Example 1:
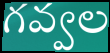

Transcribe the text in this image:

గవ్వల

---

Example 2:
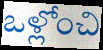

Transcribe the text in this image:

ఒళ్లోంచి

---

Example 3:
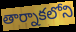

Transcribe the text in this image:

తార్నాకలోని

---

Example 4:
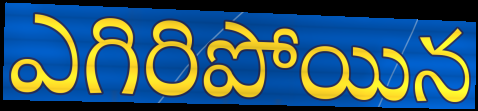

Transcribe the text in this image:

ఎగిరిపోయిన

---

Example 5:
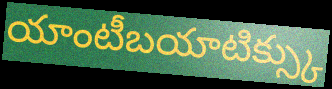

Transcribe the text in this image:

యాంటీబయాటిక్స్కు